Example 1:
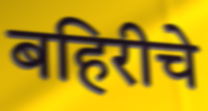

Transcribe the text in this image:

बहिरीचे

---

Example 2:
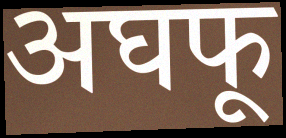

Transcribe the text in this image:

अघफू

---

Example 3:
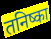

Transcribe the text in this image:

तनिष्का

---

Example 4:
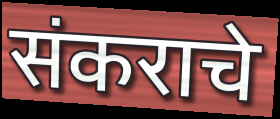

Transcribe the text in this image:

संकराचे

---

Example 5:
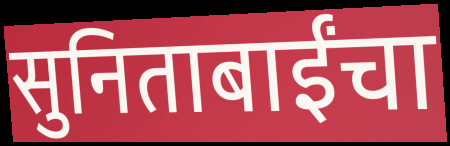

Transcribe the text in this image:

सुनिताबाईंचा